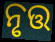
ନୃତ୍ତ